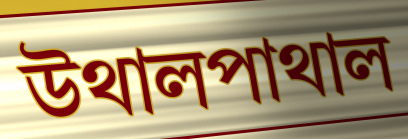
উথালপাথাল